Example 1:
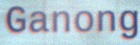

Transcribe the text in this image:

Ganong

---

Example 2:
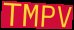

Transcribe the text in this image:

TMPV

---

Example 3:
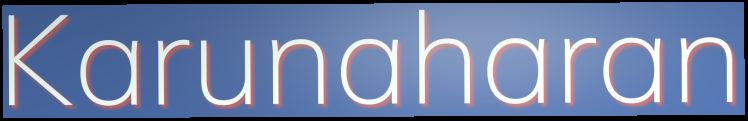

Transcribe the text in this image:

Karunaharan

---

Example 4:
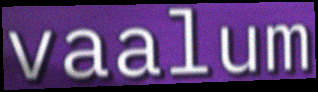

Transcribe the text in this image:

vaalum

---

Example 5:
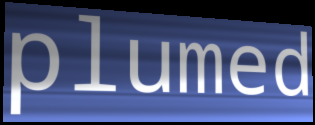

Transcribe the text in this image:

plumed